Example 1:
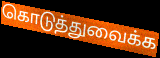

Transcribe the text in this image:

கொடுத்துவைக்க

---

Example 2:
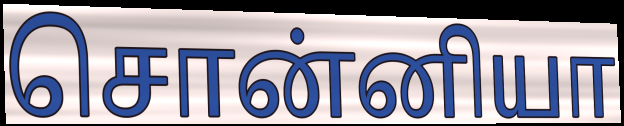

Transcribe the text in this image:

சொன்னியா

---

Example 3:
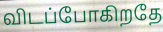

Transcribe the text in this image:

விடப்போகிறதே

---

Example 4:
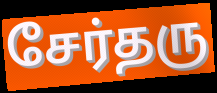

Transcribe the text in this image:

சேர்தரு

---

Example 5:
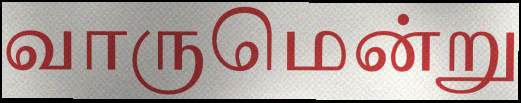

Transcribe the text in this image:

வாருமென்று